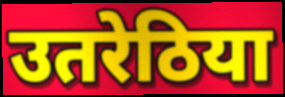
उतरेठिया